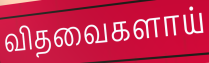
விதவைகளாய்